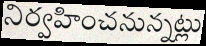
నిర్వహించనున్నట్లు